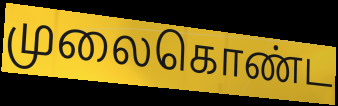
முலைகொண்ட